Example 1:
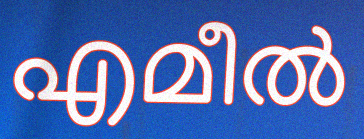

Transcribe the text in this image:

എമീൽ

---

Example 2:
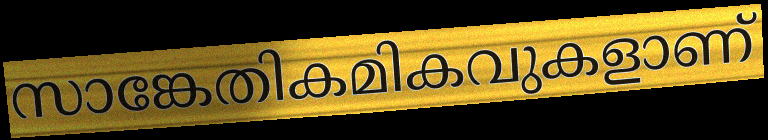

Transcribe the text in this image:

സാങ്കേതികമികവുകളാണ്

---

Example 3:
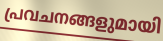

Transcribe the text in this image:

പ്രവചനങ്ങളുമായി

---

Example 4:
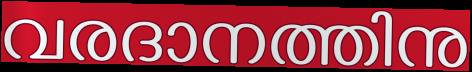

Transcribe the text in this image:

വരദാനത്തിനു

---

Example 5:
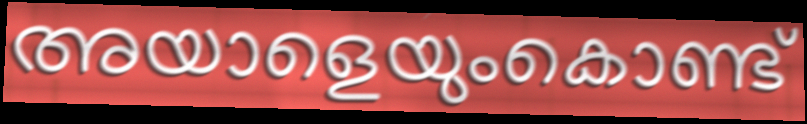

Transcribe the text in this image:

അയാളെയുംകൊണ്ട്